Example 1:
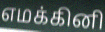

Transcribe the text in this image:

எமக்கினி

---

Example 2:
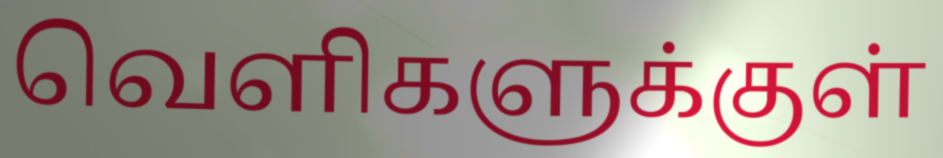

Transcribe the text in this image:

வெளிகளுக்குள்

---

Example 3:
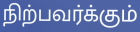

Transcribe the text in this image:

நிற்பவர்க்கும்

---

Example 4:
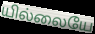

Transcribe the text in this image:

யில்லையே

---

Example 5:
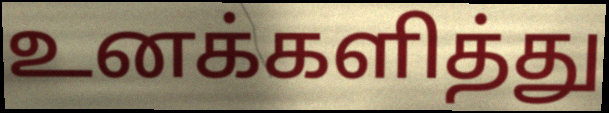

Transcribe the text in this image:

உனக்களித்து